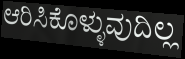
ಆರಿಸಿಕೊಳ್ಳುವುದಿಲ್ಲ